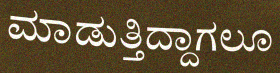
ಮಾಡುತ್ತಿದ್ದಾಗಲೂ